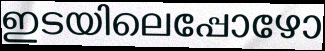
ഇടയിലെപ്പോഴോ